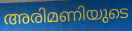
അരിമണിയുടെ